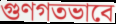
গুণগতভাবে